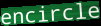
encircle